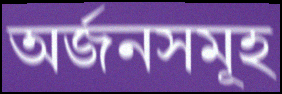
অর্জনসমূহ